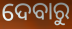
ଦେବାରୁ